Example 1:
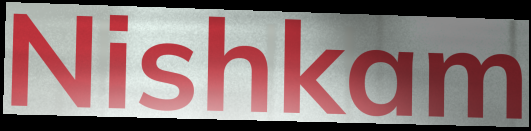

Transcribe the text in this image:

Nishkam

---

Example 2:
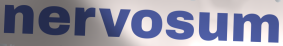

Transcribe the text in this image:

nervosum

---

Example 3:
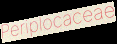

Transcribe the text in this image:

Periplocaceae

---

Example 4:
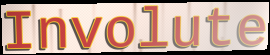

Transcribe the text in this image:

Involute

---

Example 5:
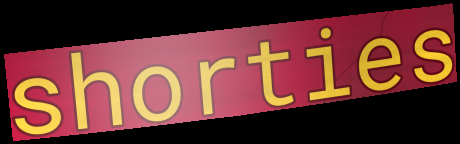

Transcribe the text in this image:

shorties